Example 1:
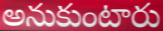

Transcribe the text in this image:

అనుకుంటారు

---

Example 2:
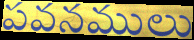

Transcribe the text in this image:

పవనములు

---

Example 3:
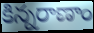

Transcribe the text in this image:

కిన్నరాణాం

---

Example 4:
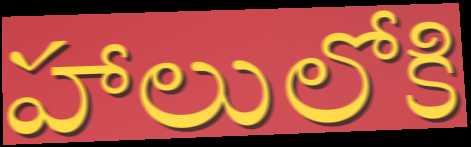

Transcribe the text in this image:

హాలులోకి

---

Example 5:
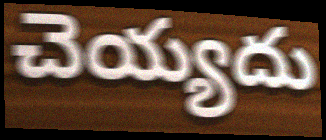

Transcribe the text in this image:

చెయ్యదు